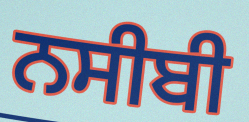
ਨਸੀਬੀ